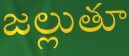
జల్లుతూ